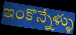
ఇంకొన్నేళ్ళు